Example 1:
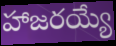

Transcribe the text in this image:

హాజరయ్యే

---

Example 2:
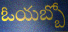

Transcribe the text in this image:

ఓయబ్బో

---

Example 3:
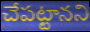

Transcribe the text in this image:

చేపట్టానని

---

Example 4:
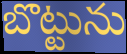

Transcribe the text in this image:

బొట్టును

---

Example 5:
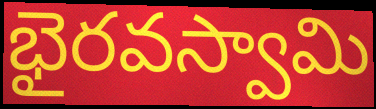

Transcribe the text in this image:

భైరవస్వామి